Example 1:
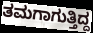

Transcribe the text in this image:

ತಮಗಾಗುತ್ತಿದ್ದ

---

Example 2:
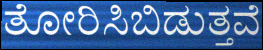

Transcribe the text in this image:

ತೋರಿಸಿಬಿಡುತ್ತವೆ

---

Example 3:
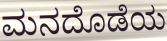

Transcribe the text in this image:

ಮನದೊಡೆಯ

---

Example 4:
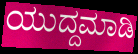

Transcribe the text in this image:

ಯುದ್ದಮಾಡಿ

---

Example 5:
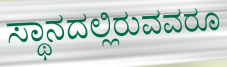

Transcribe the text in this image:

ಸ್ಥಾನದಲ್ಲಿರುವವರೂ